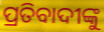
ପ୍ରତିବାଦୀଙ୍କୁ